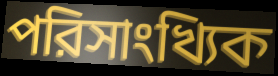
পরিসাংখ্যিক